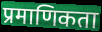
प्रमाणिकता